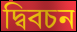
দ্বিবচন